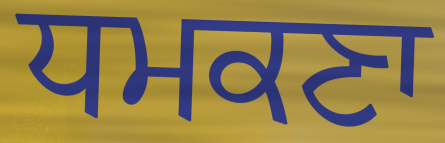
ਧਮਕਣਾ